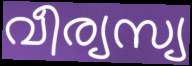
വീര്യസ്യ